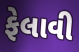
ફેલાવી